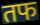
तफ